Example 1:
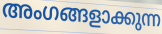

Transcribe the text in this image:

അംഗങ്ങളാക്കുന്ന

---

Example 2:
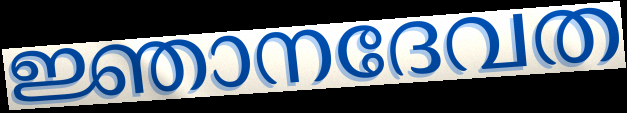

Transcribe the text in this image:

ജ്ഞാനദേവത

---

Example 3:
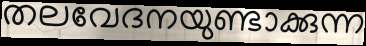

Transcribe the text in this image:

തലവേദനയുണ്ടാക്കുന്ന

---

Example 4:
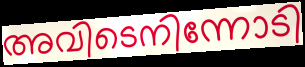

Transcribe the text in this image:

അവിടെനിന്നോടി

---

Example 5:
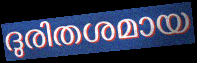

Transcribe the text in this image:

ദുരിതശമായ